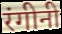
रंगीनी